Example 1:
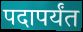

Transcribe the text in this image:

पदापर्यंत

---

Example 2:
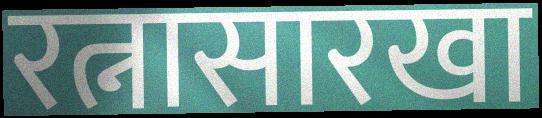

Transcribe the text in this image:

रत्नासारखा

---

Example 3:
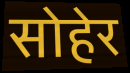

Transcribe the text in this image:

सोहेर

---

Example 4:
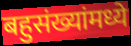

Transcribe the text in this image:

बहुसंख्यांमध्ये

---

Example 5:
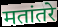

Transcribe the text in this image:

मतांतरे